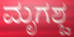
ಮೃಗಶ್ಚ